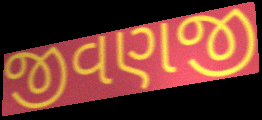
જીવણજી